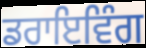
ਡਰਾਇਵਿੰਗ